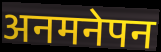
अनमनेपन